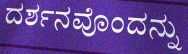
ದರ್ಶನವೊಂದನ್ನು